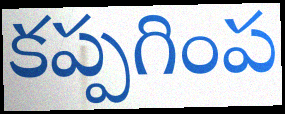
కప్పగింప